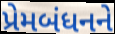
પ્રેમબંધનને